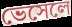
ভেসেলে